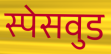
स्पेसवुड